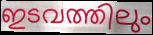
ഇടവത്തിലും